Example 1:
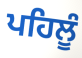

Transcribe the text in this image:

ਪਹਿਲੂੰ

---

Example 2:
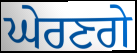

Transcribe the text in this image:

ਘੇਰਣਗੇ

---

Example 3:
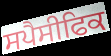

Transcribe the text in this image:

ਸਪੈਸੀਫਿਕ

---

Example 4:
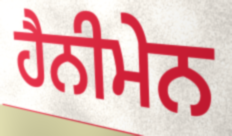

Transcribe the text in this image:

ਹੈਨੀਮੇਨ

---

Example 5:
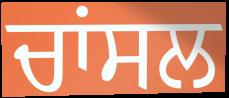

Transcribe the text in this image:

ਚਾਂਸਲ